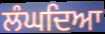
ਲੰਘਦਿਆ